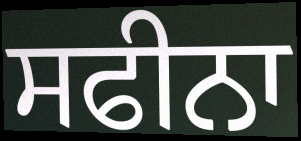
ਸਫੀਨਾ